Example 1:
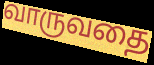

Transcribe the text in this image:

வாருவதை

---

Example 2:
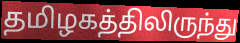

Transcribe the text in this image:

தமிழகத்திலிருந்து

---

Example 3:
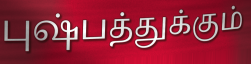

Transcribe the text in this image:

புஷ்பத்துக்கும்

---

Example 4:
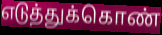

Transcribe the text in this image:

எடுத்துக்கொண்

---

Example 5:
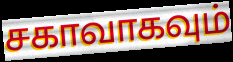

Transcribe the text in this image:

சகாவாகவும்